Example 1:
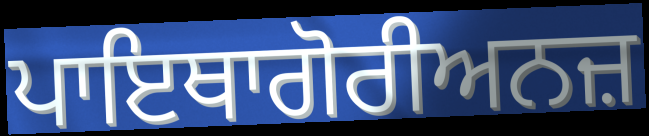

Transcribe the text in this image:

ਪਾਇਥਾਗੋਰੀਅਨਜ਼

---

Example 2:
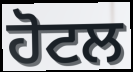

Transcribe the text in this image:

ਹੋਟਲ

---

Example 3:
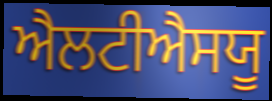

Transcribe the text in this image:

ਐਲਟੀਐਸਯੂ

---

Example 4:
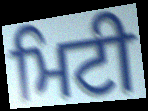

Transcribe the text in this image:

ਮਿਟੀ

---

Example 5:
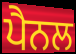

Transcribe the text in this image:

ਪੈਨਲ